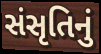
સંસૃતિનું